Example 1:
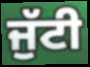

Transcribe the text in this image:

ਜੁੱਟੀ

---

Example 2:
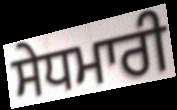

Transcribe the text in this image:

ਸੇਧਮਾਰੀ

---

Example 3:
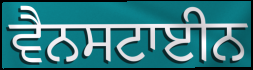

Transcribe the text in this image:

ਵੈਨਸਟਾਈਨ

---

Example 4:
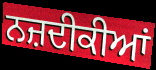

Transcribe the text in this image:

ਨਜ਼ਦੀਕੀਆਂ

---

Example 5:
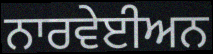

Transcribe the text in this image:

ਨਾਰਵੇਈਅਨ